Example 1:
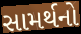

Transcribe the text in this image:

સામર્થનો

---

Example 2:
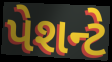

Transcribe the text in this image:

પેશન્ટે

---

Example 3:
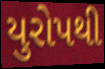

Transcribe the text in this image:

યુરોપથી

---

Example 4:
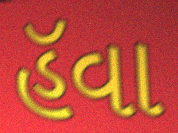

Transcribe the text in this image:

હૅવા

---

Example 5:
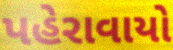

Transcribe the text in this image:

પહેરાવાયો